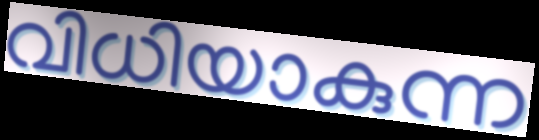
വിധിയാകുന്ന